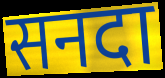
सनदा